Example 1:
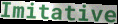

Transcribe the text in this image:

Imitative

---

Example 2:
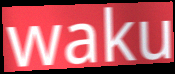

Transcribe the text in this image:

waku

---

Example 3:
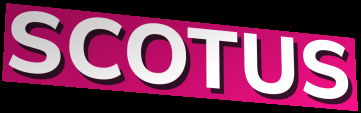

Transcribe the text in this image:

SCOTUS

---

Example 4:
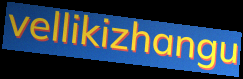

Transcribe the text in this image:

vellikizhangu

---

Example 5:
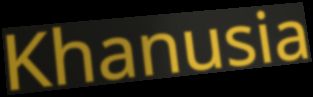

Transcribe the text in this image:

Khanusia